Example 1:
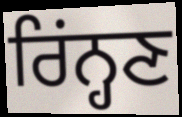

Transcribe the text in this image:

ਰਿਂਨ੍ਹਣ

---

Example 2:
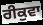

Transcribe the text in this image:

ਰੀਕੁਵਾ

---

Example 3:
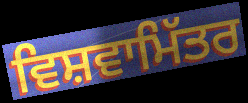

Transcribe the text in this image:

ਵਿਸ਼ਵਾਮਿੱਤਰ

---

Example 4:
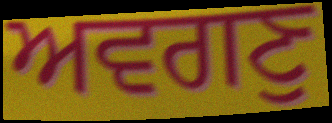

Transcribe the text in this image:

ਅਵਗਣੁ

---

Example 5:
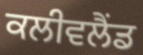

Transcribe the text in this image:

ਕਲੀਵਲੈਂਡ